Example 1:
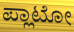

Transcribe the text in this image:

ಪ್ಲಾಟೋ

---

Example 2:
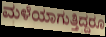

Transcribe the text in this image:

ಮಳೆಯಾಗುತ್ತಿದ್ದರೂ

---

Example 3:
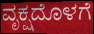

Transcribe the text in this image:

ವೃಕ್ಷದೊಳಗೆ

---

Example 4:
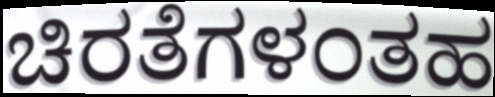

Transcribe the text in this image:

ಚಿರತೆಗಳಂತಹ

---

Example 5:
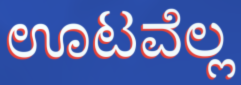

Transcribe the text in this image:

ಊಟವೆಲ್ಲ